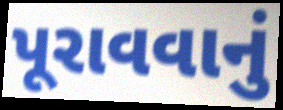
પૂરાવવાનું